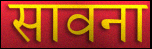
सावना